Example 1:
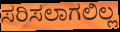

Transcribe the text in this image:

ಸರಿಸಲಾಗಲಿಲ್ಲ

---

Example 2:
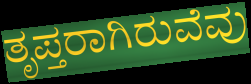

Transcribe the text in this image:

ತೃಪ್ತರಾಗಿರುವೆವು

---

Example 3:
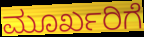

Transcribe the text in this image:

ಮೂರ್ಖರಿಗೆ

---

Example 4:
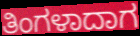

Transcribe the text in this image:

ತಿಂಗಳಾದಾಗ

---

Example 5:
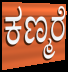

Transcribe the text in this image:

ಕಣ್ಮರೆ